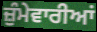
ਜ਼ੁੰਮੇਵਾਰੀਆਂ